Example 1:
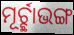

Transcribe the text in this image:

ମୂର୍ଚ୍ଛାଭଙ୍ଗ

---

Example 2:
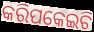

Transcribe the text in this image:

କରିପକେଇଚି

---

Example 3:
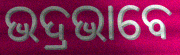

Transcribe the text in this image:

ଭଦ୍ରଭାବେ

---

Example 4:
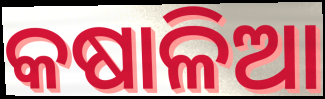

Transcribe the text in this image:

କଷାଳିଆ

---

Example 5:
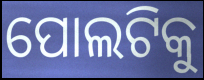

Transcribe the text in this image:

ପୋଲଟିକୁ